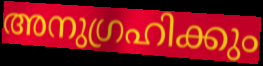
അനുഗ്രഹിക്കും